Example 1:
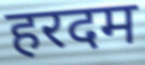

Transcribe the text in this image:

हरदम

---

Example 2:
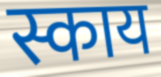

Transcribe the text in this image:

स्काय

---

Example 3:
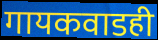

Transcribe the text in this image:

गायकवाडही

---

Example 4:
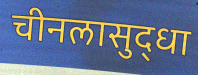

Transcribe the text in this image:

चीनलासुद्धा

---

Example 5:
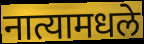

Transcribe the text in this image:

नात्यामधले